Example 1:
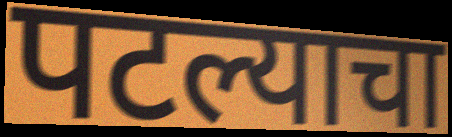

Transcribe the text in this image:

पटल्याचा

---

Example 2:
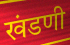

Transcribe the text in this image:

खंडणी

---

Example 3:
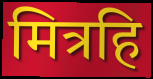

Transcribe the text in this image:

मित्रहि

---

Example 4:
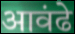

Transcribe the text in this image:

आवंढे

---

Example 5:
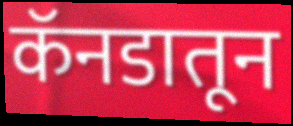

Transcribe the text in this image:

कॅनडातून